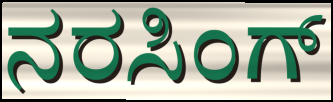
ನರಸಿಂಗ್